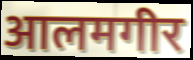
आलमगीर